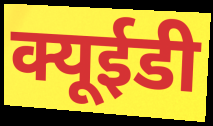
क्यूईडी